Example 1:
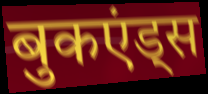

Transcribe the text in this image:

बुकएंड्स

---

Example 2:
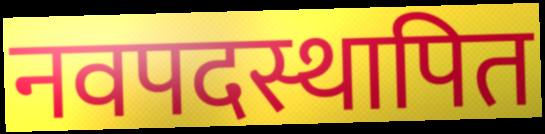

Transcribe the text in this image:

नवपदस्थापित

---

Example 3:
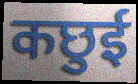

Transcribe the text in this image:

कछुई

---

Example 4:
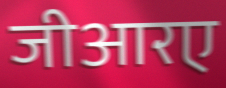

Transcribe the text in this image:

जीआरए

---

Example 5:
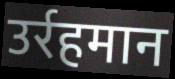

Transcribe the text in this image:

उर्रहमान